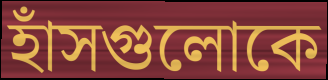
হাঁসগুলোকে